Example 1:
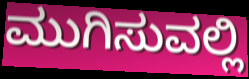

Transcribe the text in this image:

ಮುಗಿಸುವಲ್ಲಿ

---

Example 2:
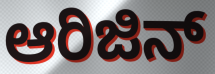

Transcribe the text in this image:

ಆರಿಜಿನ್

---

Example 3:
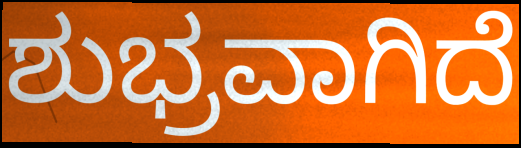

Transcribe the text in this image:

ಶುಭ್ರವಾಗಿದೆ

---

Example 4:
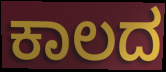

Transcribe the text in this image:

ಕಾಲದ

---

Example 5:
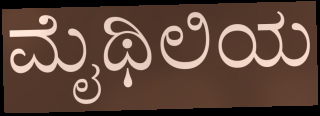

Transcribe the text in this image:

ಮೈಥಿಲಿಯ